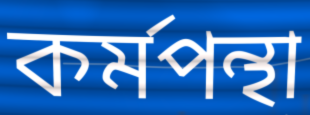
কৰ্মপন্থা